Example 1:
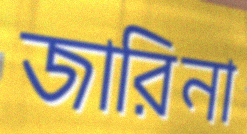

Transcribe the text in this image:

জারিনা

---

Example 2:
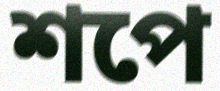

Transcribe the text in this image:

শপে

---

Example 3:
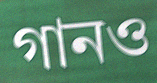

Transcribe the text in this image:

গানও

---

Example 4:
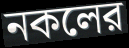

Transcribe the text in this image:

নকলের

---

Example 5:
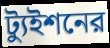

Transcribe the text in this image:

ট্যুইশনের